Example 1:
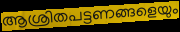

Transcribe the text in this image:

ആശ്രിതപട്ടണങ്ങളെയും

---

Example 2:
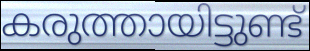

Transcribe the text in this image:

കരുത്തായിട്ടുണ്ട്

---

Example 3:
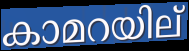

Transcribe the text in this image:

കാമറയില്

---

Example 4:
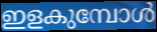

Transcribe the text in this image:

ഇളകുമ്പോൾ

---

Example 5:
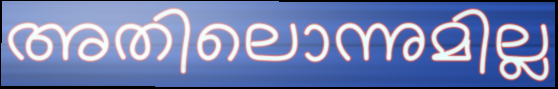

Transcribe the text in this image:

അതിലൊന്നുമില്ല